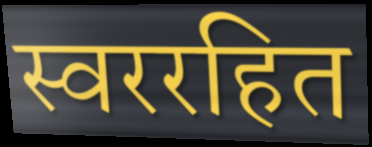
स्वररहित